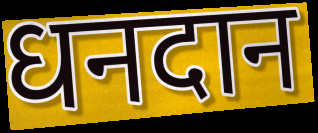
धनदान